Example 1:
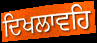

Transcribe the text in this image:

ਦਿਖਲਾਵਹਿ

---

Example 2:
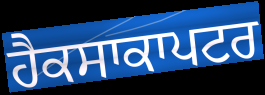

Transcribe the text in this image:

ਹੈਕਸਾਕਾਪਟਰ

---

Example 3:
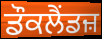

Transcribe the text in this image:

ਡੌਕਲੈਂਡਜ਼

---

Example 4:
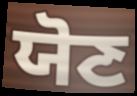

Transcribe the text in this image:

ਯੋਣ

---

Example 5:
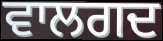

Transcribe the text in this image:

ਵਾਲਗਦ